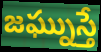
జఘ్నుస్తే